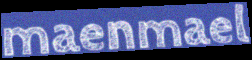
maenmael